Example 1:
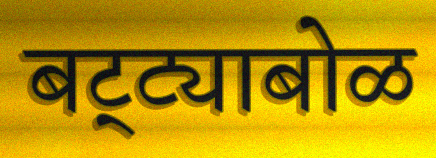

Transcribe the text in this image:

बट्ट्याबोळ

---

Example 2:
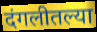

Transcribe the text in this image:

दंगलीतल्या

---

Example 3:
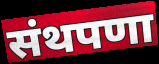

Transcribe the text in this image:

संथपणा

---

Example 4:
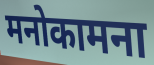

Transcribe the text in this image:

मनोकामना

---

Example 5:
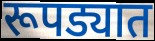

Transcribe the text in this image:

रूपड्यात